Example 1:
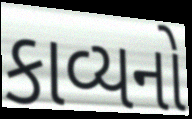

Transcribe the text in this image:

કાવ્યનો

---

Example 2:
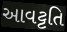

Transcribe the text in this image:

આવટ્ટતિ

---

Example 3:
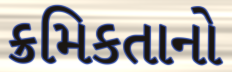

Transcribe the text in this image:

ક્રમિકતાનો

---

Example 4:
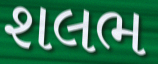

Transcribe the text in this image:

શલભ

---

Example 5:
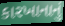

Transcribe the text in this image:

કારખાનાનું